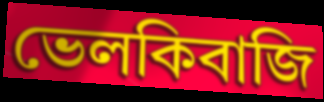
ভেলকিবাজি